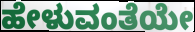
ಹೇಳುವಂತೆಯೇ